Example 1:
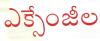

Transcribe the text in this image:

ఎక్సేంజీల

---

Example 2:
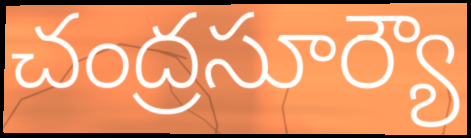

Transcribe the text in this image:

చంద్రసూర్యౌ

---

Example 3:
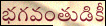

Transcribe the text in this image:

భగవంతుడికీ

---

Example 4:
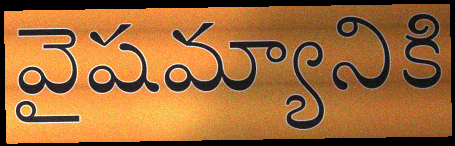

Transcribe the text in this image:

వైషమ్యానికి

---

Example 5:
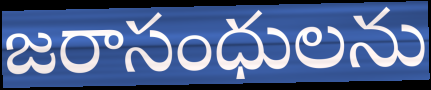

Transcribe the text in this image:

జరాసంధులను